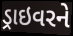
ડ્રાઇવરને